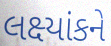
લક્ષ્યાંકને